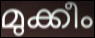
മുക്കീം